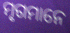
ମୃଗମାନେ